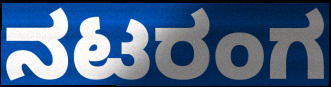
ನಟರಂಗ